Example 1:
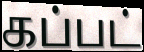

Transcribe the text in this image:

கப்பட்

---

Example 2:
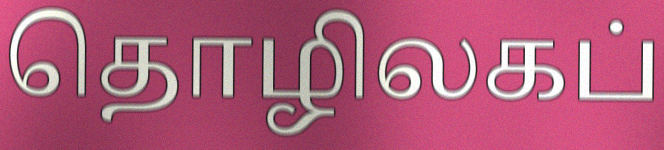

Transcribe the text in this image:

தொழிலகப்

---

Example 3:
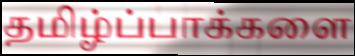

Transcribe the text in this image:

தமிழ்ப்பாக்களை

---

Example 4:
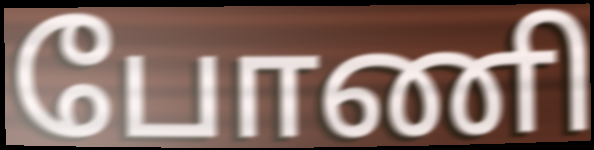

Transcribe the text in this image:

போணி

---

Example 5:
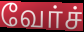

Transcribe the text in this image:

வேர்ச்